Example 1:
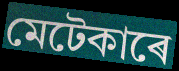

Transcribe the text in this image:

মেটেকাৰে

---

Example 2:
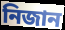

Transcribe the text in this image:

নিজান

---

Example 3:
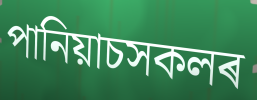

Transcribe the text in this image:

পানিয়াচসকলৰ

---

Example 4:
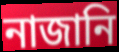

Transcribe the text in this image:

নাজানি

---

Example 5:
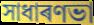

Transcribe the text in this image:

সাধাৰণভা